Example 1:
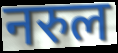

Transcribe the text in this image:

नरुल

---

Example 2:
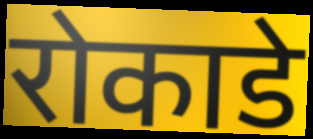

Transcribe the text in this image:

रोकाडे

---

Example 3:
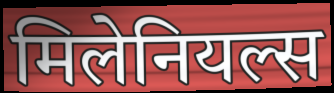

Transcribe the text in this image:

मिलेनियल्स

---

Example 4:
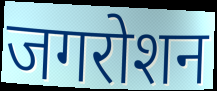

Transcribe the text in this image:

जगरोशन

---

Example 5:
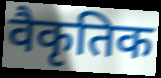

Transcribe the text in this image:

वैकृतिक